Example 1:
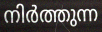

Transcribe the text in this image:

നിർത്തുന്ന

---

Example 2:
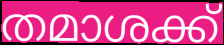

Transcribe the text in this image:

തമാശക്ക്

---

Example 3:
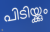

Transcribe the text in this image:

പിടിയ്ക്കും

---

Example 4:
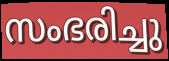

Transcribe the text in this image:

സംഭരിച്ചു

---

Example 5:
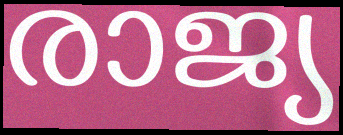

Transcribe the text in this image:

രാജ്യ